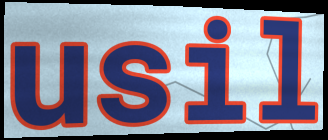
usil